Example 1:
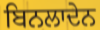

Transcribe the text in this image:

ਬਿਨਲਾਦੇਨ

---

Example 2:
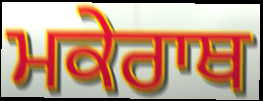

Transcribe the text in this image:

ਮਕੇਰਾਥ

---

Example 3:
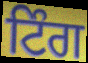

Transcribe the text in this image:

ਟਿੰਗ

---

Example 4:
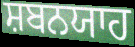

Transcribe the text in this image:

ਸ਼ਬਨਯਾਹ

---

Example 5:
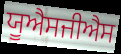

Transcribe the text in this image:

ਯੂਐਸਜੀਐਸ